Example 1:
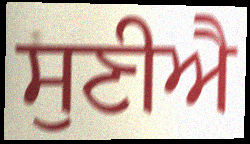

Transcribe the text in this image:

ਸੁਣੀਐ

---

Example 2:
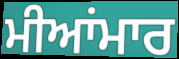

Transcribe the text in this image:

ਮੀਆਂਮਾਰ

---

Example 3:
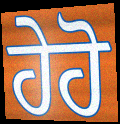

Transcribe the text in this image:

ਹੇਹੋ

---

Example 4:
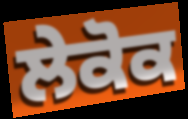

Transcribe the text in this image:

ਲੇਕੋਕ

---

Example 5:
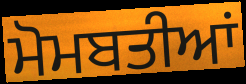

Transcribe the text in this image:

ਮੋਮਬਤੀਆਂ